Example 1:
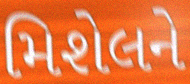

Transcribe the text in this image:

મિશેલને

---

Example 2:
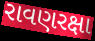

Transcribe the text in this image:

રાવણરક્ષા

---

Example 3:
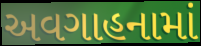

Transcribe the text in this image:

અવગાહનામાં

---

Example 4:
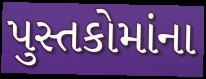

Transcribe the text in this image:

પુસ્તકોમાંના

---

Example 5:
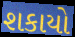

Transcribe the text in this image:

શકાયો